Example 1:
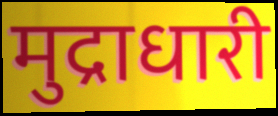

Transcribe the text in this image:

मुद्राधारी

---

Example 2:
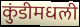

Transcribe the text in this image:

कुंडीमधली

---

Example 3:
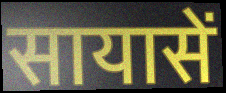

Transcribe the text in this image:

सायासें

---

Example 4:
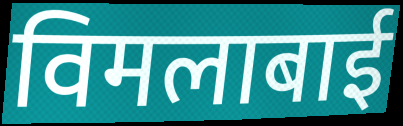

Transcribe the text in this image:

विमलाबाई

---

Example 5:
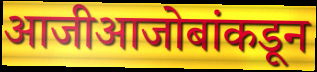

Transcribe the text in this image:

आजीआजोबांकडून